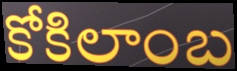
కోకిలాంబ